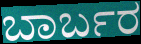
ಬಾರ್ಬರ